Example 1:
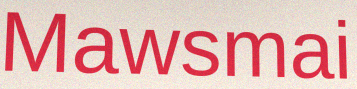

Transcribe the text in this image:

Mawsmai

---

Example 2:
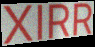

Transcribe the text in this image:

XIRR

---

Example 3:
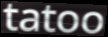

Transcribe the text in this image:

tatoo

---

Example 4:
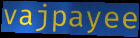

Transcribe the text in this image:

vajpayee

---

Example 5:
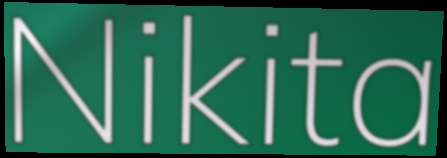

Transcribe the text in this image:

Nikita